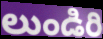
లుండిరి